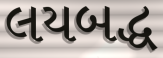
લયબદ્ધ